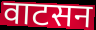
वाटसन